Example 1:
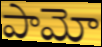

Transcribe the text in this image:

పామో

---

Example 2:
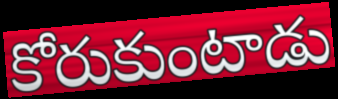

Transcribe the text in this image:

కోరుకుంటాడు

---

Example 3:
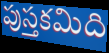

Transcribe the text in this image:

పుస్తకమిది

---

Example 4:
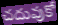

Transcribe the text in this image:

చదువుకో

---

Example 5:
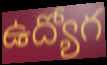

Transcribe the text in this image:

ఉద్యోగ